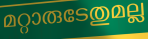
മറ്റാരുടേതുമല്ല